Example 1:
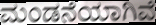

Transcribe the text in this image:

ಮಂಡನೆಯಾಗಿವೆ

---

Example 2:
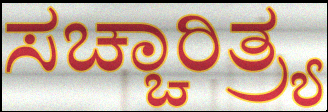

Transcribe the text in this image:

ಸಚ್ಚಾರಿತ್ರ್ಯ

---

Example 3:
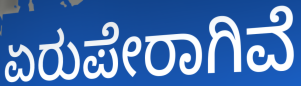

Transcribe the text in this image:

ಏರುಪೇರಾಗಿವೆ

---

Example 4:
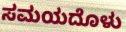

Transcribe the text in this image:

ಸಮಯದೊಳು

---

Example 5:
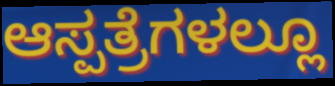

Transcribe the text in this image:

ಆಸ್ಪತ್ರೆಗಳಲ್ಲೂ